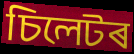
চিলেটৰ